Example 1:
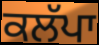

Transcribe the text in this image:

ਕਲੱਪਾ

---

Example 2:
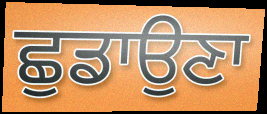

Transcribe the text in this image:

ਛੁਡਾਉਣਾ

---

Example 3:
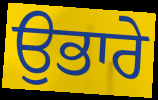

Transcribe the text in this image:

ਉਭਾਰੇ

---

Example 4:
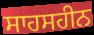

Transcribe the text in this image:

ਸਾਹਸਹੀਨ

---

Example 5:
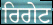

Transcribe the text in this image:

ਰਿਗੇਟ